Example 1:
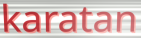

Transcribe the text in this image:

karatan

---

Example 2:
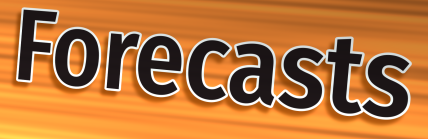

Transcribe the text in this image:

Forecasts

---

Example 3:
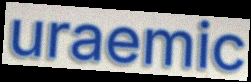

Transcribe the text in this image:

uraemic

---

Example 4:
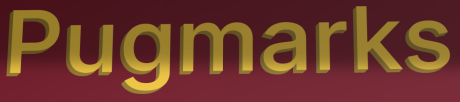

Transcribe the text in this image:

Pugmarks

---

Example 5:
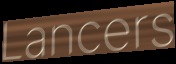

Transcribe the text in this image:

Lancers